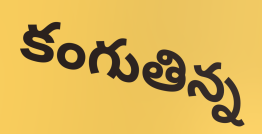
కంగుతిన్న